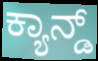
ಕ್ಯಾನ್ಡ್